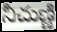
నీచుణ్ణి